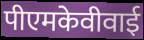
पीएमकेवीवाई